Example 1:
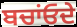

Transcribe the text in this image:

ਬਚਾਂਓਦੇ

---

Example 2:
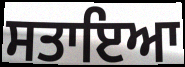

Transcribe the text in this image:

ਸਤਾਇਆ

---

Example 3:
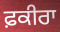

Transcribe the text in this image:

ਫ਼ਕੀਰਾ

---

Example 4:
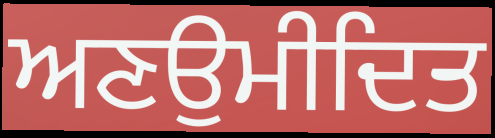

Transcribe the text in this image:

ਅਣਉਮੀਦਿਤ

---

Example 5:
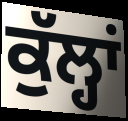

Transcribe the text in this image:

ਕੁੱਲ੍ਹਾਂ